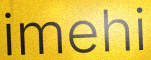
imehi